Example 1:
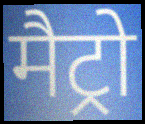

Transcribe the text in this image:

मैट्रो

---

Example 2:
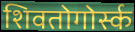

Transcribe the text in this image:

शिवतोगोर्स्क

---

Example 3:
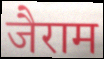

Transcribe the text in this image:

जैराम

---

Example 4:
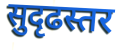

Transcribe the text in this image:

सुदृढस्तर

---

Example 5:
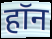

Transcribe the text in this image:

हॉन